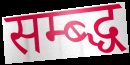
सम्ब्द्ध